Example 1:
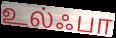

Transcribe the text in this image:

உல்ஃபா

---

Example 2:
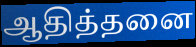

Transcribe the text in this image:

ஆதித்தனை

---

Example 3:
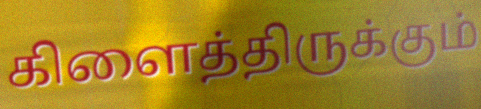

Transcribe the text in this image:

கிளைத்திருக்கும்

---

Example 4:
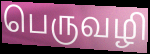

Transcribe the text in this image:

பெருவழி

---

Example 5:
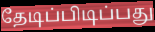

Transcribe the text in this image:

தேடிப்பிடிப்பது